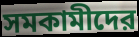
সমকামীদের